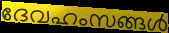
ദേവഹംസങ്ങൾ